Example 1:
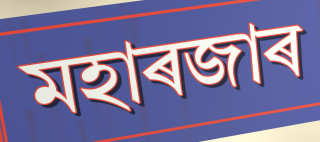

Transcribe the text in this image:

মহাৰজাৰ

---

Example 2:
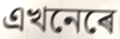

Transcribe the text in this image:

এখনেৰে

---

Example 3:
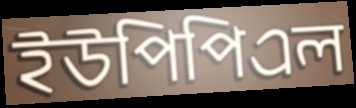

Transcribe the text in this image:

ইউপিপিএল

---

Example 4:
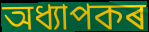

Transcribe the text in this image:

অধ্যাপকৰ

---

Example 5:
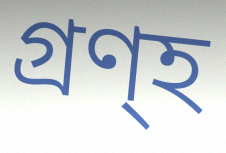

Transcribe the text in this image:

গ্ৰণ্হ